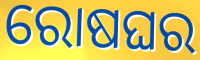
ରୋଷଘର